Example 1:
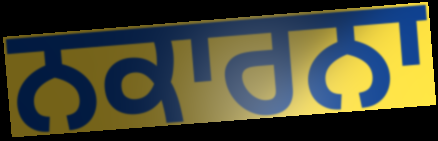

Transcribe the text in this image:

ਨਕਾਰਨਾ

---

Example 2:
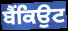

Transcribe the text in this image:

ਬੈਂਕਿਉਟ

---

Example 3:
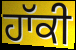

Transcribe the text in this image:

ਹਾੱਕੀ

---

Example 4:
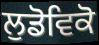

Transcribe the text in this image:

ਲੁਡੋਵਿਕੋ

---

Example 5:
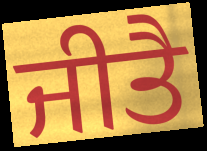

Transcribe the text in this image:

ਜੀਤੈ